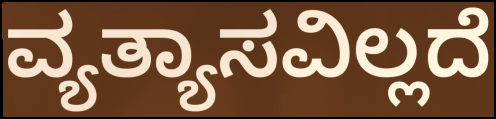
ವ್ಯತ್ಯಾಸವಿಲ್ಲದೆ